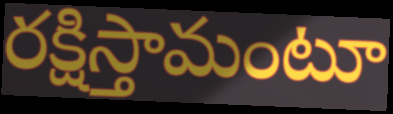
రక్షిస్తామంటూ